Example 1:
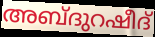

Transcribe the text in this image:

അബ്ദുറഷീദ്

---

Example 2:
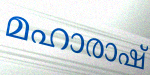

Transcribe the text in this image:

മഹാരാഷ്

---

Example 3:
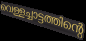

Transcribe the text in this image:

വെള്ളച്ചാട്ടത്തിന്റെ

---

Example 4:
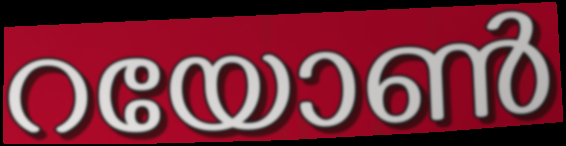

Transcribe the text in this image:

റയോൺ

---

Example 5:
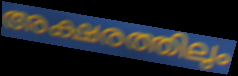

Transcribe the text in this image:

അക്ഷരത്തിലും